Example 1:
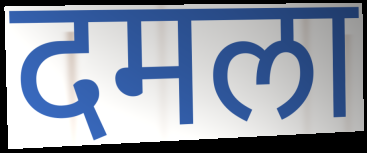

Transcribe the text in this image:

दमला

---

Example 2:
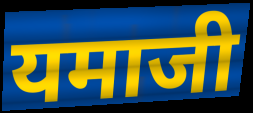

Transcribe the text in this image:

यमाजी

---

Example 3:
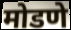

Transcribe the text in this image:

मोडणे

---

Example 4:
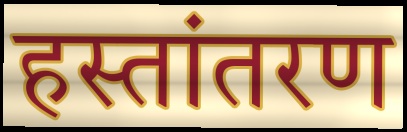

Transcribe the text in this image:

हस्तांतरण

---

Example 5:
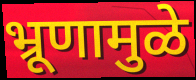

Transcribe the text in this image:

भ्रूणामुळे